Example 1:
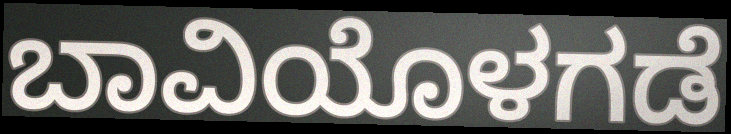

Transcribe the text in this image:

ಬಾವಿಯೊಳಗಡೆ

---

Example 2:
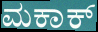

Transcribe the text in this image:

ಮಕಾಕ್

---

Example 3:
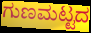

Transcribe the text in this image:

ಗುಣಮಟ್ಟದ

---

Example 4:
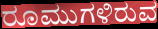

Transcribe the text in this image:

ರೂಮುಗಳಿರುವ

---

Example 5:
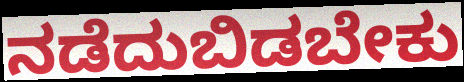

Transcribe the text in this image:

ನಡೆದುಬಿಡಬೇಕು